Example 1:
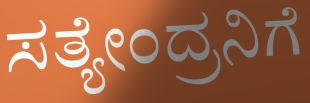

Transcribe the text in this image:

ಸತ್ಯೇಂದ್ರನಿಗೆ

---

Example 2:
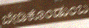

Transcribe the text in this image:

ಬೇಡಿಕೊಂಡುಂಬ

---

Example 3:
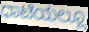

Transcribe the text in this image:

ಧಾಟಿಯಲ್ಲೂ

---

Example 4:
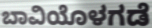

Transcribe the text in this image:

ಬಾವಿಯೊಳಗಡೆ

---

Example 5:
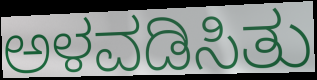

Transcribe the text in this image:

ಅಳವಡಿಸಿತು